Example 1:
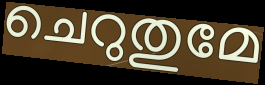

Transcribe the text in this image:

ചെറുതുമേ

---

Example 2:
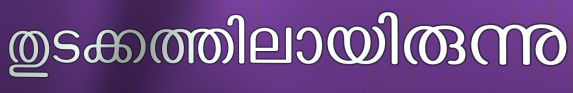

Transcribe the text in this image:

തുടക്കത്തിലായിരുന്നു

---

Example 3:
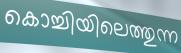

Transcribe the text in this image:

കൊച്ചിയിലെത്തുന്ന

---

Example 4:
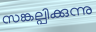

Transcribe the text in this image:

സങ്കല്പിക്കുന്നു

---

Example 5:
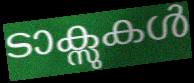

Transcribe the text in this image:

ടാക്സുകൾ